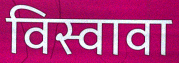
विस्वावा